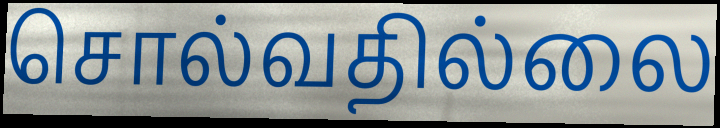
சொல்வதில்லை